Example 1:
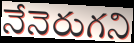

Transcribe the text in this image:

నేనెరుగని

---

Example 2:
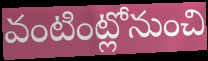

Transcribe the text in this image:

వంటింట్లోనుంచి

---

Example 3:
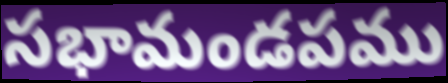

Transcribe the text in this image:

సభామండపము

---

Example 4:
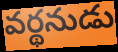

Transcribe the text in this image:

వర్థనుడు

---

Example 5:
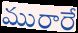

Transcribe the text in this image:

మురారే